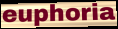
euphoria